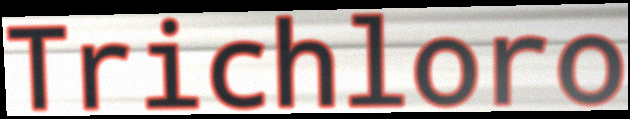
Trichloro